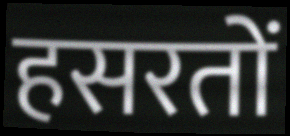
हसरतों